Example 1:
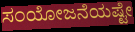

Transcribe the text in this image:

ಸಂಯೋಜನೆಯಷ್ಟೇ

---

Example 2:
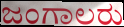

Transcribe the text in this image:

ಜಂಗಾಲರು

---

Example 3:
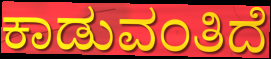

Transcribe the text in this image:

ಕಾಡುವಂತಿದೆ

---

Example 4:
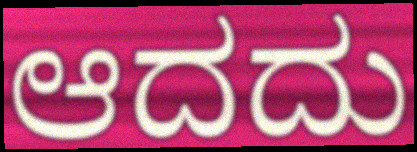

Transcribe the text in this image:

ಆದದು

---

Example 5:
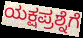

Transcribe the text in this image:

ಯಕ್ಷಪ್ರಶ್ನೆಗೆ